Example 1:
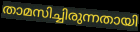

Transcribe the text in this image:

താമസിച്ചിരുന്നതായി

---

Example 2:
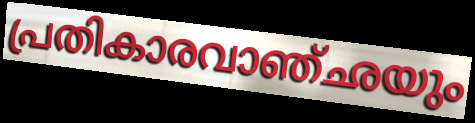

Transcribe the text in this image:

പ്രതികാരവാഞ്ഛയും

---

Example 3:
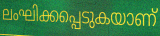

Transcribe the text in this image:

ലംഘിക്കപ്പെടുകയാണ്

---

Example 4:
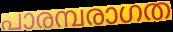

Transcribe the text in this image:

പാരമ്പരാഗത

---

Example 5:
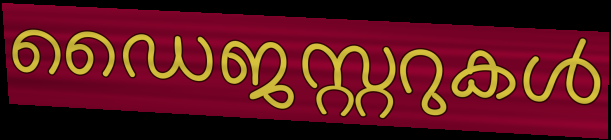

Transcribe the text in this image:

ഡൈജസ്റ്ററുകൾ